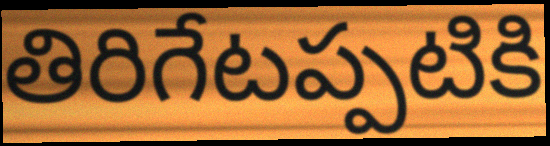
తిరిగేటప్పటికి